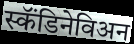
स्कॅंडिनेविअन